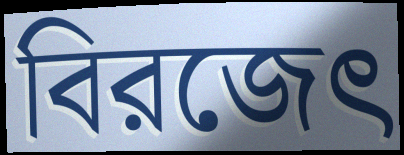
বিরজেৎ